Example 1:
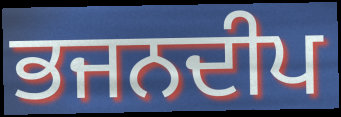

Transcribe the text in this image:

ਭਜਨਦੀਪ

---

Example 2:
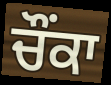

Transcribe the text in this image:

ਚੌੰਕਾ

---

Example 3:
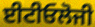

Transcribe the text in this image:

ਈਟੀਓਲੋਜੀ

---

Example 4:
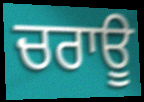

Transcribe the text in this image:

ਚਰਾਊ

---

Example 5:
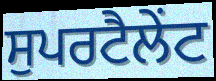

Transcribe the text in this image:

ਸੁਪਰਟੈਲੇਂਟ